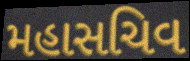
મહાસચિવ